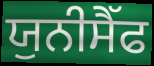
ਯੁਨੀਸੈੱਫ